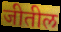
जीतील